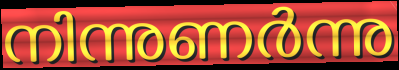
നിന്നുണർന്നു